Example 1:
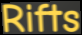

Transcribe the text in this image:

Rifts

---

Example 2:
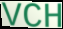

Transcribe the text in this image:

VCH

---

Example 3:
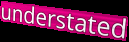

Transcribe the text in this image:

understated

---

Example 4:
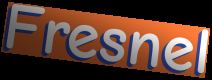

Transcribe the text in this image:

Fresnel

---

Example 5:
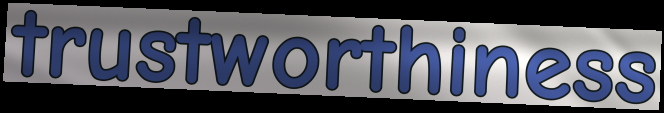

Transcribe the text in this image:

trustworthiness